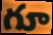
గూ